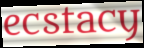
ecstacy